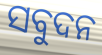
ସବୁଦନ